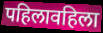
पहिलावहिला